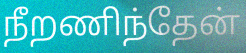
நீறணிந்தேன்